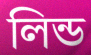
লিন্ড